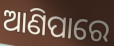
ଆଣିପାରେ